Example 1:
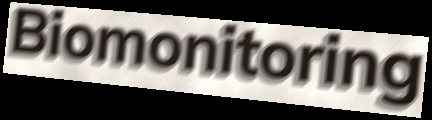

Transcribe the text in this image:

Biomonitoring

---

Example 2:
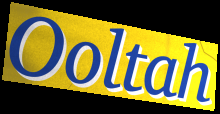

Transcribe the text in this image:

Ooltah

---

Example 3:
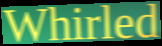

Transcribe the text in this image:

Whirled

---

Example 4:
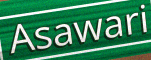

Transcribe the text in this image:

Asawari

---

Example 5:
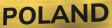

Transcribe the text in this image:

POLAND